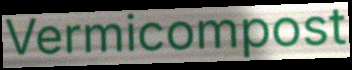
Vermicompost